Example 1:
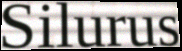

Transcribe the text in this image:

Silurus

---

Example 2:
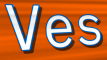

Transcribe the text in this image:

Ves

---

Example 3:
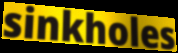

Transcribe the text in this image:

sinkholes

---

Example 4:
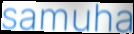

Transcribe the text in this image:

samuha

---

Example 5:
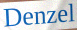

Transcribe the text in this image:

Denzel